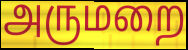
அருமறை